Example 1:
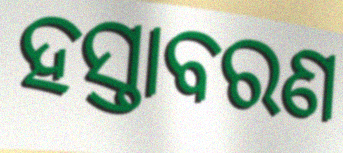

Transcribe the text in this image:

ହସ୍ତାବରଣ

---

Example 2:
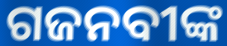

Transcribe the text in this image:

ଗଜନବୀଙ୍କ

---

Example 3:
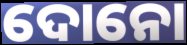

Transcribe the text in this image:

ଦୋନୋ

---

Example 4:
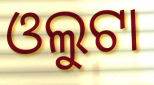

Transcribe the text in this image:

ଓଲୁଟା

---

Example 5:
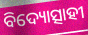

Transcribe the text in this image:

ବିଦ୍ୟୋତ୍ସାହୀ